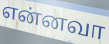
என்னவா